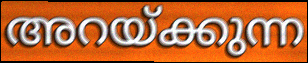
അറയ്ക്കുന്ന